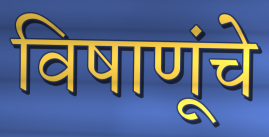
विषाणूंचे